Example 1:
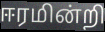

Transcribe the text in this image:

ஈரமின்றி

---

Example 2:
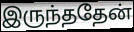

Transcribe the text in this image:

இருந்ததேன்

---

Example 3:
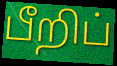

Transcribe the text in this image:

பீறிப்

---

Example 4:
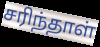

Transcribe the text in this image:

சரிந்தாள்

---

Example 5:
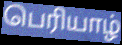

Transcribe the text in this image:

பெரியாழ்